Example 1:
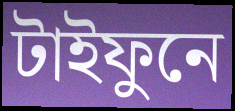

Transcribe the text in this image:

টাইফুনে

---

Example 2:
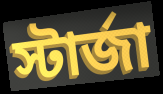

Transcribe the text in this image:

স্টার্জা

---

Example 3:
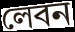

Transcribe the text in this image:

লেবন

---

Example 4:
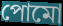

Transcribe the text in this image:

পোমো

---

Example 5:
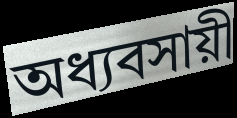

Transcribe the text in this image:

অধ্যবসায়ী